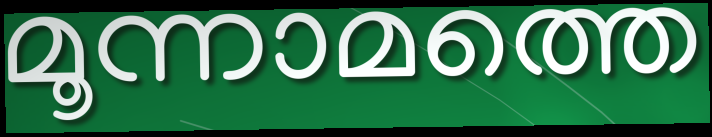
മൂന്നാമത്തെ